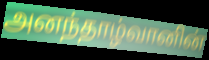
அனந்தாழ்வானின்